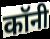
कॉनी